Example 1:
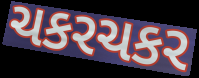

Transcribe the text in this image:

ચકરચકર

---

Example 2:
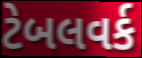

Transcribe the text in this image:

ટેબલવર્ક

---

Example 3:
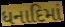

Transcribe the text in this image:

ધનાદિમાં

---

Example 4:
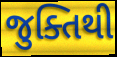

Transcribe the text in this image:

જુક્તિથી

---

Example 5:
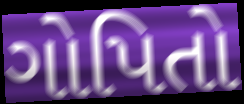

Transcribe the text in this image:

ગોપિતો